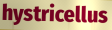
hystricellus